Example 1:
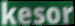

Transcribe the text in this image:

kesor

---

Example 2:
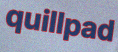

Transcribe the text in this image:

quillpad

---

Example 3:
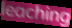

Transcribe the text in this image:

leaching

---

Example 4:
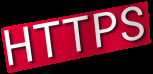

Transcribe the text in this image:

HTTPS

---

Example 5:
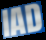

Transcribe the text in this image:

IAD